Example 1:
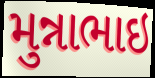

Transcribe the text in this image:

મુન્નાભાઇ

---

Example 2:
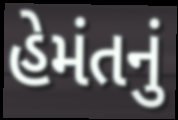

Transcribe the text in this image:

હેમંતનું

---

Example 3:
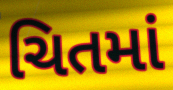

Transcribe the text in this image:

ચિતમાં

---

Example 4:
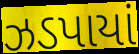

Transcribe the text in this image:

ઝડપાયાં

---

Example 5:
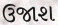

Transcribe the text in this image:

ઉજાશ